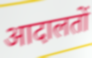
आदालतों